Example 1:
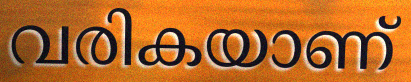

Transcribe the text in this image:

വരികയാണ്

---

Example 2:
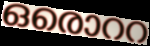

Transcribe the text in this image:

ഒരൊററ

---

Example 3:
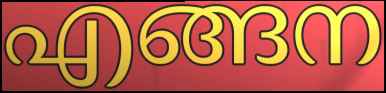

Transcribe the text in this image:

എങ്ങന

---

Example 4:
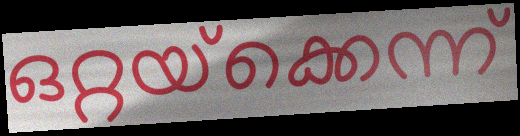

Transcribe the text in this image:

ഒറ്റയ്‌ക്കെന്ന്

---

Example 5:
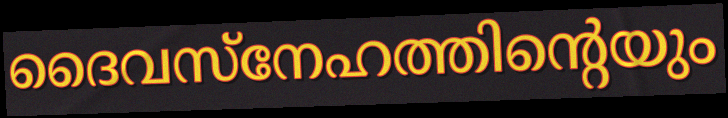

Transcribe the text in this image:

ദൈവസ്നേഹത്തിന്റെയും